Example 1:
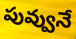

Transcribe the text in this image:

పువ్వునే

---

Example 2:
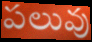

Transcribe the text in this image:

పలువు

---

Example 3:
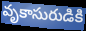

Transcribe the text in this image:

వృకాసురుడికి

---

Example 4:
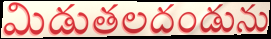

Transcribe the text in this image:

మిడుతలదండును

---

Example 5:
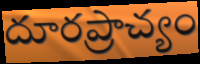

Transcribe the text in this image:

దూరప్రాచ్యం